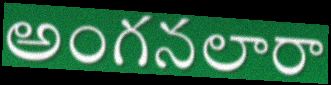
అంగనలారా